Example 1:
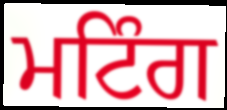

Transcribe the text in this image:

ਮਟਿੰਗ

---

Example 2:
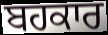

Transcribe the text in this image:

ਬਹਕਾਰ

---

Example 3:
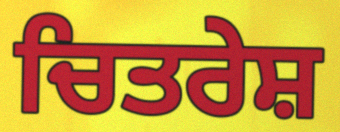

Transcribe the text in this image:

ਚਿਤਰੇਸ਼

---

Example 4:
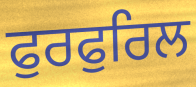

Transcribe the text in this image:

ਫੁਰਫੁਰਿਲ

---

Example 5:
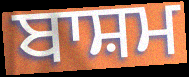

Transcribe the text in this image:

ਬਾਸ਼ਮ